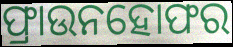
ଫ୍ରାଉନହୋଫର